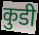
कुडी